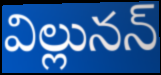
విల్లునన్